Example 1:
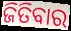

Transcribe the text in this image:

ଜିତିବାର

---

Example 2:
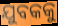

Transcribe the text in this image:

ଯୁବକକୁ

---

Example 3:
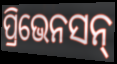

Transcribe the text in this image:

ପ୍ରିଭେନସନ୍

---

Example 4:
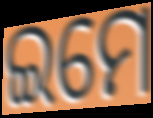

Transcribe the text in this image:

ଇମେ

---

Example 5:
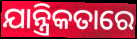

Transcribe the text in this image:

ଯାନ୍ତ୍ରିକତାରେ